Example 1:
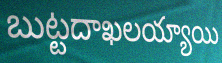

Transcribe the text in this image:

బుట్టదాఖలయ్యాయి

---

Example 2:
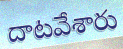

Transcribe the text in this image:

దాటవేశారు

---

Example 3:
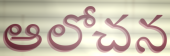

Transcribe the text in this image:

ఆలోచన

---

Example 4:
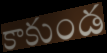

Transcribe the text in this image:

కాకుండ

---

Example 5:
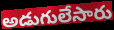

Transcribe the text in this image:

అడుగులేసారు